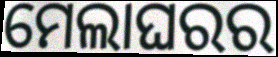
ମେଲାଘରର